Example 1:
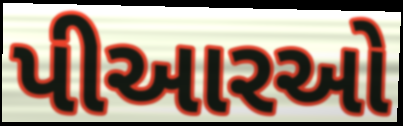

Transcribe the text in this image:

પીઆરઓ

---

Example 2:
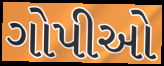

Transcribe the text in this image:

ગોપીઓ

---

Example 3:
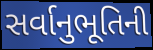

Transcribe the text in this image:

સર્વાનુભૂતિની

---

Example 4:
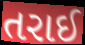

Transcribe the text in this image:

તરાઈ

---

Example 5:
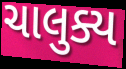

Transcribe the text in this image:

ચાલુક્ય